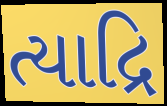
ત્યાદ્રિ